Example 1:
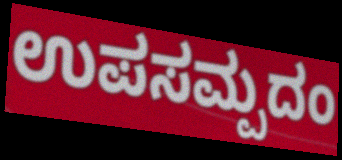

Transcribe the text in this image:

ಉಪಸಮ್ಪದಂ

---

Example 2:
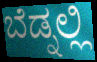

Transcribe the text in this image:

ಬೆಡ್ನಲ್ಲಿ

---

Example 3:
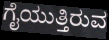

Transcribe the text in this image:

ಗೈಯುತ್ತಿರುವ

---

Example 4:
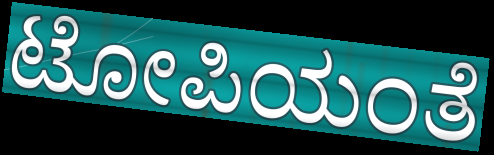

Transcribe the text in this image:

ಟೋಪಿಯಂತೆ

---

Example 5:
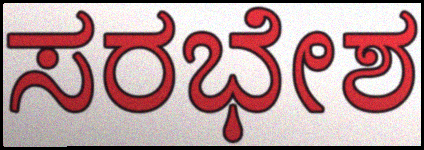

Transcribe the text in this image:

ಸರಭೇಶ